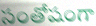
సంతోషంగా